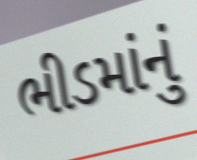
ભીડમાંનું